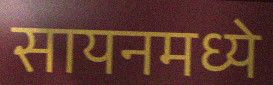
सायनमध्ये